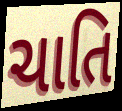
ચાતિ